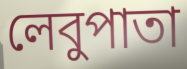
লেবুপাতা